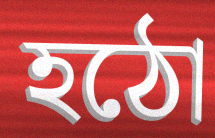
হঠো